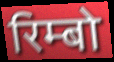
रिम्बो